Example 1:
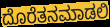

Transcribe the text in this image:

ದೊರೆತನಮಾಡಲಿ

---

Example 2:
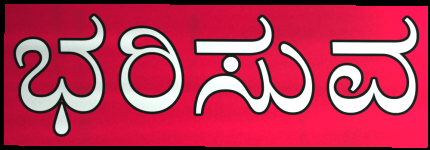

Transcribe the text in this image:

ಭರಿಸುವ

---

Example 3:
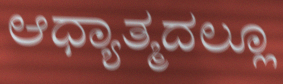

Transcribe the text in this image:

ಆಧ್ಯಾತ್ಮದಲ್ಲೂ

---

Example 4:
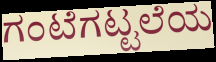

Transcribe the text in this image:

ಗಂಟೆಗಟ್ಟಲೆಯ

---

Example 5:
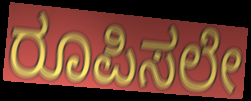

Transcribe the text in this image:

ರೂಪಿಸಲೇ